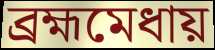
ব্রহ্মমেধায়